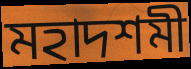
মহাদশমী